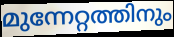
മുന്നേറ്റത്തിനും